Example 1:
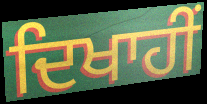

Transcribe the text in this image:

ਦਿਖਾਹੀਂ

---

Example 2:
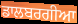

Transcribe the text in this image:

ਡਾਲਬਰਗੀਆ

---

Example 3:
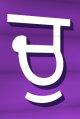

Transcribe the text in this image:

ਚੁ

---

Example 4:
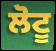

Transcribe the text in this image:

ਲੋਟੂ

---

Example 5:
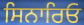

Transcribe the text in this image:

ਸਿਨਾਰਿਓ